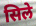
सिले